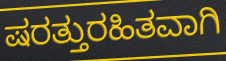
ಷರತ್ತುರಹಿತವಾಗಿ